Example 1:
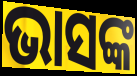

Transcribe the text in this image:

ଭାସଙ୍କ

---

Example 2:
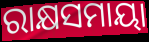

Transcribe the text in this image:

ରାକ୍ଷସମାୟା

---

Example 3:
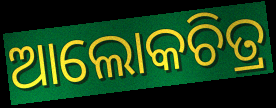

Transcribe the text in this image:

ଆଲୋକଚିତ୍ର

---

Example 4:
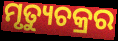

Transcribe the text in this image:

ମୃତ୍ୟୁଚକ୍ରର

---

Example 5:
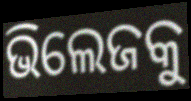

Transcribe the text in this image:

ଭିଲେଜକୁ